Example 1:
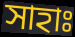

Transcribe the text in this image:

সাহাঃ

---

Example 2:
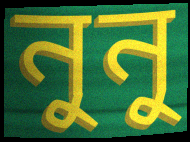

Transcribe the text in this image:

নুনু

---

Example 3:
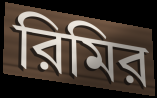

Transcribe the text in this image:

রিমির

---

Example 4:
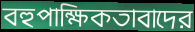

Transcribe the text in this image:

বহুপাক্ষিকতাবাদের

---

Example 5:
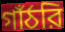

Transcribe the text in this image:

গাঁঠরি